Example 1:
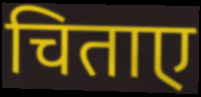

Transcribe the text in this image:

चिताए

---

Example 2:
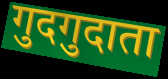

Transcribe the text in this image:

गुदगुदाता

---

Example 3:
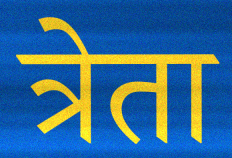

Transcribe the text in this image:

त्रेता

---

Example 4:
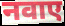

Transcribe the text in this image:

नवाए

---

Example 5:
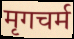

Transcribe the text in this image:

मृगचर्म